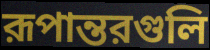
রূপান্তরগুলি